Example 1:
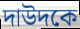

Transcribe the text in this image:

দাউদকে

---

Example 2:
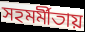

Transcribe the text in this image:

সহমর্মীতায়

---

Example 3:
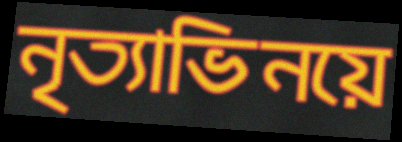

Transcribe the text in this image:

নৃত্যাভিনয়ে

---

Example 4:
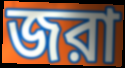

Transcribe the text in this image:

জরা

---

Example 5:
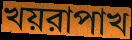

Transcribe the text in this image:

খয়রাপাখ